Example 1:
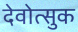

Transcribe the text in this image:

देवोत्सुक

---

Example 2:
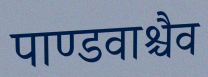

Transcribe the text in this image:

पाण्डवाश्चैव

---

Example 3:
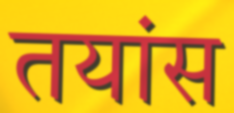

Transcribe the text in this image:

तयांस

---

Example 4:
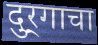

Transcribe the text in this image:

दुर्गाचा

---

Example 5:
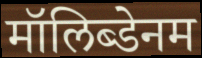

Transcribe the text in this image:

मॉलिब्डेनम